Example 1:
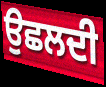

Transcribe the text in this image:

ਉਛਲਦੀ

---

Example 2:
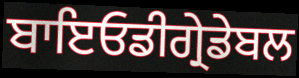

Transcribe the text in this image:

ਬਾਇਓਡੀਗ੍ਰੇਡੇਬਲ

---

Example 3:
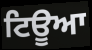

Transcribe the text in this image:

ਟਿਊਆ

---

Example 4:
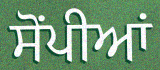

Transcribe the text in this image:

ਸੋਂਪੀਆਂ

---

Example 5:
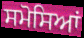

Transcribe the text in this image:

ਸਮੋਸਿਆਂ